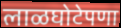
लाळघोटेपणा